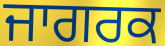
ਜਾਗਰਕ